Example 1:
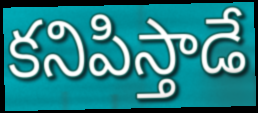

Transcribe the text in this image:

కనిపిస్తాడే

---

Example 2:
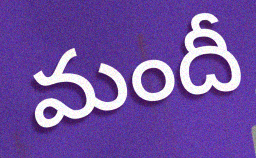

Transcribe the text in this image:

మందీ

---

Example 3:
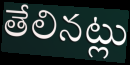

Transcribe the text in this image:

తేలినట్లు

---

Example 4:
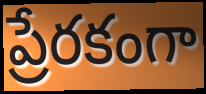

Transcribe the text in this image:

ప్రేరకంగా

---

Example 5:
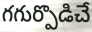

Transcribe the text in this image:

గగుర్పొడిచే